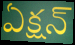
ఏక్షన్